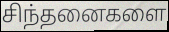
சிந்தனைகளை